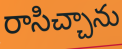
రాసిచ్చాను